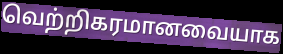
வெற்றிகரமானவையாக